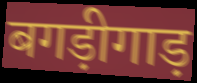
बगड़ीगाड़